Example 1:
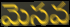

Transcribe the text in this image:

మెసవ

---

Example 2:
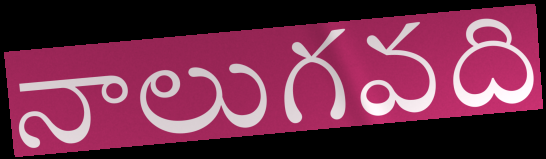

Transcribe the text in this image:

నాలుగవది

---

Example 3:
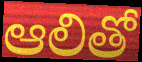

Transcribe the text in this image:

ఆలితో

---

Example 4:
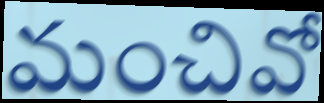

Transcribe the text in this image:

మంచివో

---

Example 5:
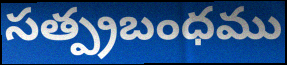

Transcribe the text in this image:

సత్ప్రబంధము